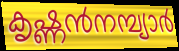
കൃഷ്ണൻനമ്പ്യാർ